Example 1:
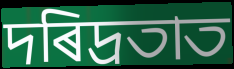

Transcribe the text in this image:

দৰিদ্ৰতাত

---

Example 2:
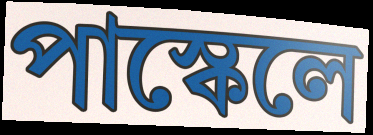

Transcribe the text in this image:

পাস্কেলে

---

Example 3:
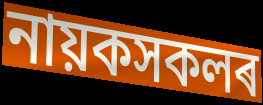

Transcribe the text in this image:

নায়কসকলৰ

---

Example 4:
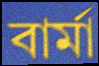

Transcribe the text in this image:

বাৰ্মা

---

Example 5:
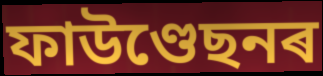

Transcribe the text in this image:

ফাউণ্ডেছনৰ